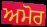
ਅਮੋਰ